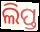
ଲିପ୍ତ